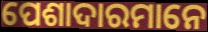
ପେଶାଦାରମାନେ